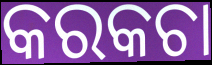
କରକଚା